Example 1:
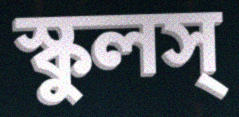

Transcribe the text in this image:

স্কুলস্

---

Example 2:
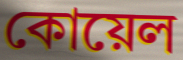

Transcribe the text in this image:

কোয়েল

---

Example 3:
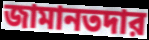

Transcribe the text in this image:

জামানতদার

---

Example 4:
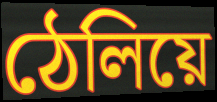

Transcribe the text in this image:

ঠেলিয়ে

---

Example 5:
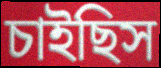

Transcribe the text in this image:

চাইছিস